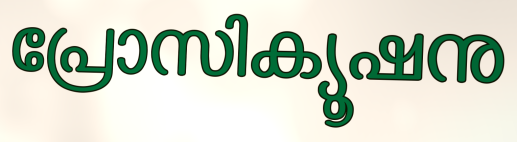
പ്രോസിക്യൂഷനു